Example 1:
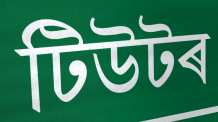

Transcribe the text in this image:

টিউটৰ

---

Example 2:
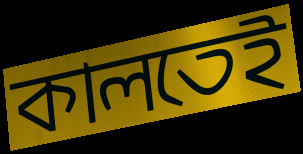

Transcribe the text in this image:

কালতেই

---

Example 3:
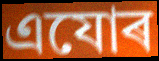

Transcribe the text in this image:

এযোৰ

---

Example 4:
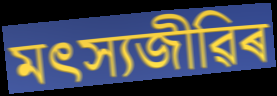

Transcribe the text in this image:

মৎস্যজীৱিৰ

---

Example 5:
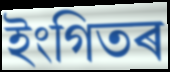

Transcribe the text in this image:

ইংগিতৰ